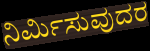
ನಿರ್ಮಿಸುವುದರ